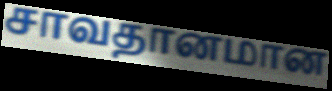
சாவதானமான